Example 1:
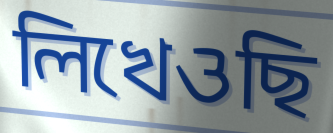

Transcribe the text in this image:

লিখেওছি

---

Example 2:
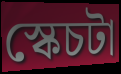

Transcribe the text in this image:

স্কেচটা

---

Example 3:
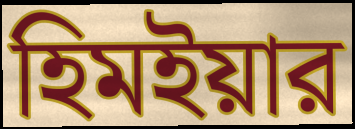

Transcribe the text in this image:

হিমইয়ার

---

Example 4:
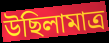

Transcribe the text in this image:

উছিলামাত্র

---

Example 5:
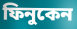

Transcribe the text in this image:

ফিনুকেন